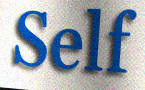
Self